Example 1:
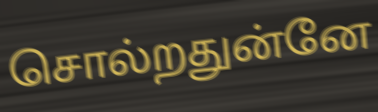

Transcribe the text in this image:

சொல்றதுன்னே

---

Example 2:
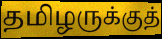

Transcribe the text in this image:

தமிழருக்குத்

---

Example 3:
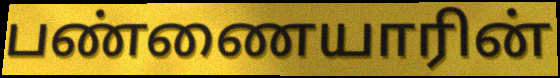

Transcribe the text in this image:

பண்ணையாரின்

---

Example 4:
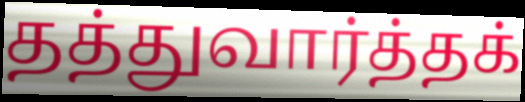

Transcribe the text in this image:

தத்துவார்த்தக்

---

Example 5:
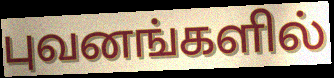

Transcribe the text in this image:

புவனங்களில்